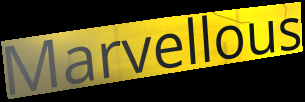
Marvellous